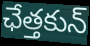
ఛేత్తకున్